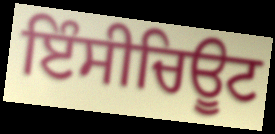
ਇੰਸੀਚਿਊਟ